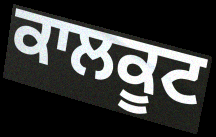
ਕਾਲਕੂਟ